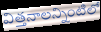
విత్తనాలన్నింటిలో